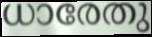
ധാരേതു